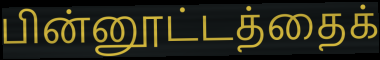
பின்னூட்டத்தைக்